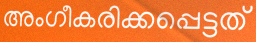
അംഗീകരിക്കപ്പെട്ടത്